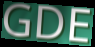
GDE